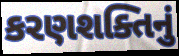
કરણશક્તિનું